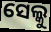
ସେଲ୍କୁ